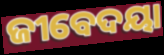
ଜୀବେଦୟା